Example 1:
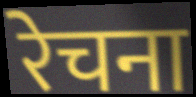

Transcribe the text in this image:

रेचना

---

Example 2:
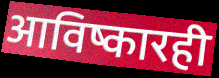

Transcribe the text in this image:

आविष्कारही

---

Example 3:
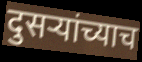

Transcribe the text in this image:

दुसऱ्यांच्याच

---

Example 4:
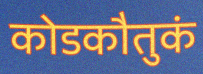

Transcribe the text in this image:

कोडकौतुकं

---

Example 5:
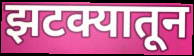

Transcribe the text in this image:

झटक्यातून